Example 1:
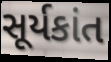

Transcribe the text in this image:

સૂર્યકાંત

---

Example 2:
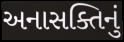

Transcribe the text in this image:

અનાસક્તિનું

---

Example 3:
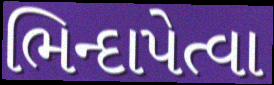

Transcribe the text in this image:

ભિન્દાપેત્વા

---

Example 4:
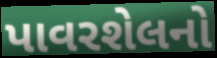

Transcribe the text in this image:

પાવરશેલનો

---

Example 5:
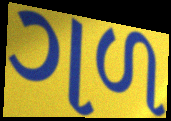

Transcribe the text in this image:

ગળ